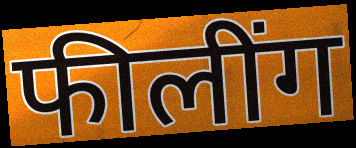
फीलींग